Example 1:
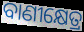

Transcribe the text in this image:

ବାଣୀକ୍ଷେତ୍ର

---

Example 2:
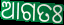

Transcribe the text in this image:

ଆଗତଃ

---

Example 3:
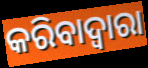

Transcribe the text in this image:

କରିବାଦ୍ବାରା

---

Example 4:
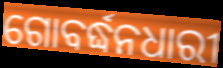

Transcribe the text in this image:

ଗୋବର୍ଦ୍ଧନଧାରୀ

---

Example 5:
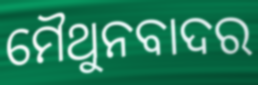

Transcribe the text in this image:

ମୈଥୁନବାଦର